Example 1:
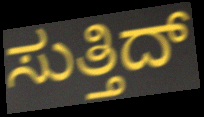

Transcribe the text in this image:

ಸುತ್ತಿದ್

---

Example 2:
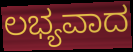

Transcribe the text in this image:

ಲಭ್ಯವಾದ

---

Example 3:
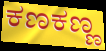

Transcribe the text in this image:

ಕಣಕಣ್ಣ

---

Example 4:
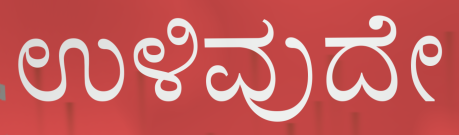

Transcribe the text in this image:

ಉಳಿವುದೇ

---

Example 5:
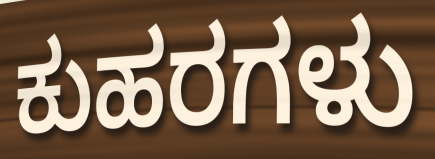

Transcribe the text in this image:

ಕುಹರಗಳು